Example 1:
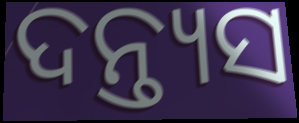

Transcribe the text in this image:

ଦନ୍ତ୍ୟସ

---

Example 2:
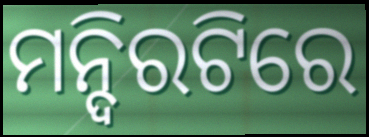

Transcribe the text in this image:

ମନ୍ଦିରଟିରେ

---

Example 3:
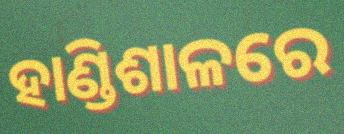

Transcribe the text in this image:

ହାଣ୍ଡିଶାଳରେ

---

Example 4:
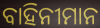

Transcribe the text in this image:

ବାହିନୀମାନ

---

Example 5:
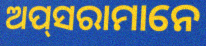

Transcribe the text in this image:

ଅପ୍‌ସରାମାନେ